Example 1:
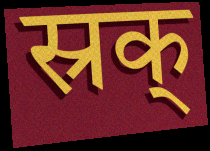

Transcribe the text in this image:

स्रक्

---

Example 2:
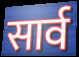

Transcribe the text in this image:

सार्व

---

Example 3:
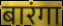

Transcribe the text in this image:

बारंगा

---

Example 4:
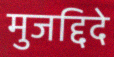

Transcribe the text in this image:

मुजद्दिदे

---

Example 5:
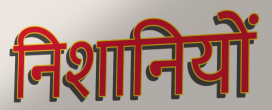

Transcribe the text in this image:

निशानियों